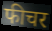
फीचर